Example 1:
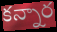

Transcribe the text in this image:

కన్నార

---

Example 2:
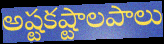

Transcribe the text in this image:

అష్టకష్టాలపాలు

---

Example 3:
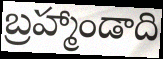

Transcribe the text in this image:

బ్రహ్మాండాది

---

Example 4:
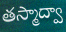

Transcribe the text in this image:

తస్మాద్వా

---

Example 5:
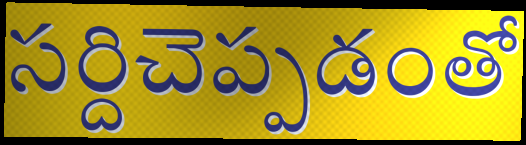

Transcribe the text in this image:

సర్దిచెప్పడంతో